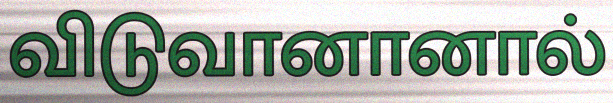
விடுவானானால்